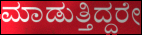
ಮಾಡುತ್ತಿದ್ದರೇ